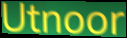
Utnoor